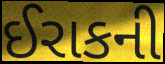
ઈરાકની